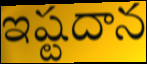
ఇష్టదాన